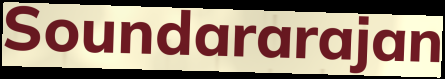
Soundararajan